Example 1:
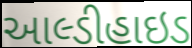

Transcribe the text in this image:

આલ્ડીહાઇડ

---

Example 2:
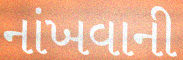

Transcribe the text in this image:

નાંખવાની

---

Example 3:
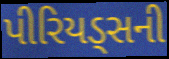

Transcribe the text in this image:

પીરિયડ્સની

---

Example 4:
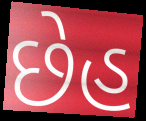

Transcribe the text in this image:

છેહ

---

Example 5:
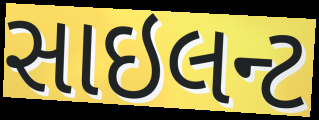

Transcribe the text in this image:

સાઇલન્ટ